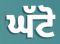
ਘੱਟੋ